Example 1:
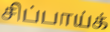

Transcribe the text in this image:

சிப்பாய்க்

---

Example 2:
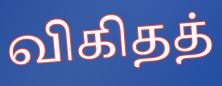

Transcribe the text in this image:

விகிதத்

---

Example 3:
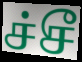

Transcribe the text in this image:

ச்சீ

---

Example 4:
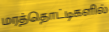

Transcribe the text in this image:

மரத்தொட்டிகளில்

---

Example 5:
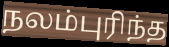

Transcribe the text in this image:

நலம்புரிந்த